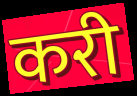
करी